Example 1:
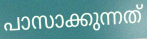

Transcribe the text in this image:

പാസാക്കുന്നത്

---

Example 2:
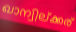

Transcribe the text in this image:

ഖാന്വില്ക്കര്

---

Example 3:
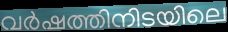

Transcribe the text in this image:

വർഷത്തിനിടയിലെ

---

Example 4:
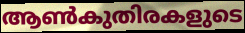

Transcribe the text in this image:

ആൺകുതിരകളുടെ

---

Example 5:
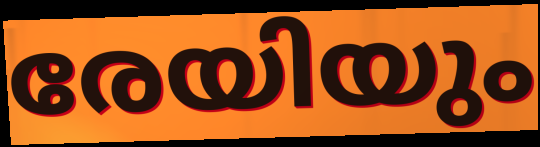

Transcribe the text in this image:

രേയിയും